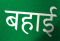
बहाई